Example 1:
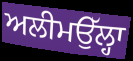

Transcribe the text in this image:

ਅਲੀਮਉੱਲ੍ਹਾ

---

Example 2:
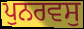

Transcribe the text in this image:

ਪੁਨਰਵਸੁ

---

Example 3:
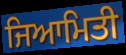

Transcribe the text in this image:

ਜਿਆਮਿਤੀ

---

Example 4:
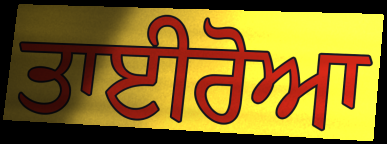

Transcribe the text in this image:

ਤਾਈਰੋਆ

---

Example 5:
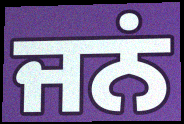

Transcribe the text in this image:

ਜਨਂ